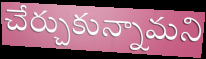
చేర్చుకున్నామని